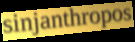
sinjanthropos